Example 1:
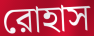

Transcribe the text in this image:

রোহাস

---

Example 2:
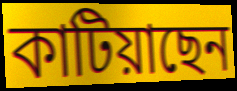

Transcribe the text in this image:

কাটিয়াছেন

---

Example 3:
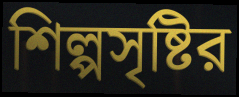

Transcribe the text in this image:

শিল্পসৃষ্টির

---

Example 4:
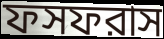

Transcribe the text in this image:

ফসফরাস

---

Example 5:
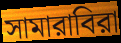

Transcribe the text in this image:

সামারাবিরা